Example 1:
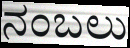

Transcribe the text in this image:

ನಂಬಲು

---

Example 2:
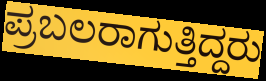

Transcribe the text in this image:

ಪ್ರಬಲರಾಗುತ್ತಿದ್ದರು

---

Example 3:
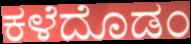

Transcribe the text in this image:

ಕಳೆದೊಡಂ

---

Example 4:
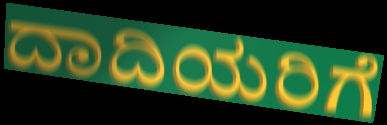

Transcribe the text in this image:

ದಾದಿಯರಿಗೆ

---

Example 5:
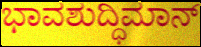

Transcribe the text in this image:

ಭಾವಶುದ್ಧಿಮಾನ್